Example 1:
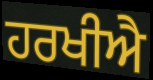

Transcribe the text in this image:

ਹਰਖੀਐ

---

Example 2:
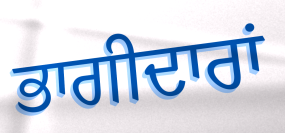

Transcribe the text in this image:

ਭਾਗੀਦਾਰਾਂ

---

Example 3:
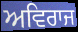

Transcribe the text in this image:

ਅਵਿਰਾਜ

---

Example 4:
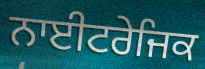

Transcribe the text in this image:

ਨਾਈਟਰੇਜਿਕ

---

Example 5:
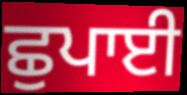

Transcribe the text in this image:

ਛੁਪਾਈ